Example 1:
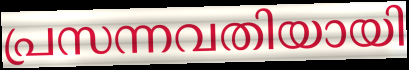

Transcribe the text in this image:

പ്രസന്നവതിയായി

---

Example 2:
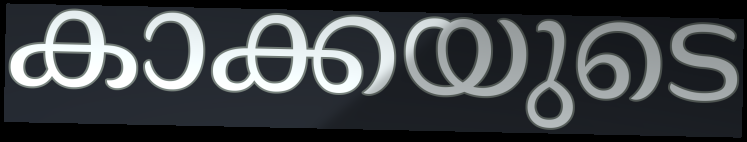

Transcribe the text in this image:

കാക്കയുടെ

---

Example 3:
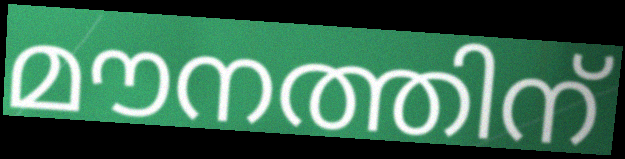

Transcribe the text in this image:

മൗനത്തിന്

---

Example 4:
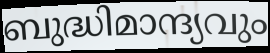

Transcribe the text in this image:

ബുദ്ധിമാന്ദ്യവും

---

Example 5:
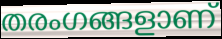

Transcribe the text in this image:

തരംഗങ്ങളാണ്